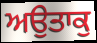
ਅਉਤਾਕੁ